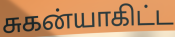
சுகன்யாகிட்ட